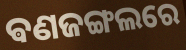
ଵଣଜଙ୍ଗଲରେ